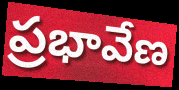
ప్రభావేణ